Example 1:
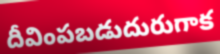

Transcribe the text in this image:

దీవింపబడుదురుగాక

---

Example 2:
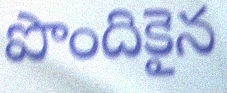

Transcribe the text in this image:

పొందికైన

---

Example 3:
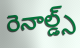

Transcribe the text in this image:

రెనాల్డ్స్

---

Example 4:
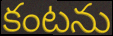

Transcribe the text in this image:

కంటను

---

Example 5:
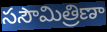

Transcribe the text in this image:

ససౌమిత్రిణా